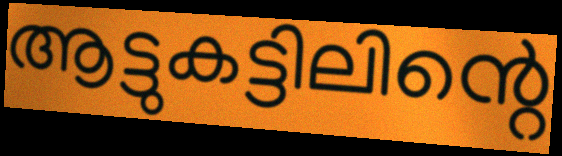
ആട്ടുകട്ടിലിന്റെ